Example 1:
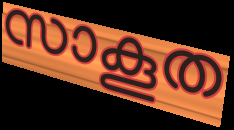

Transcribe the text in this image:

സാകൂത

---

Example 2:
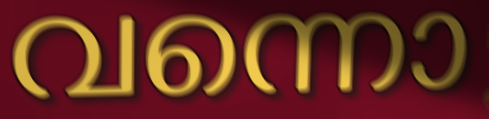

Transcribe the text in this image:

വന്നൊ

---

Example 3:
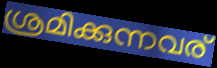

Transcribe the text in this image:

ശ്രമിക്കുന്നവര്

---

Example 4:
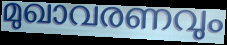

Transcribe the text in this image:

മുഖാവരണവും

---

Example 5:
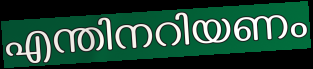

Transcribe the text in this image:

എന്തിനറിയണം